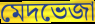
মেদভেজা